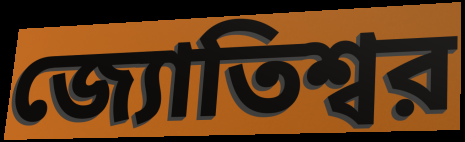
জ্যোতিশ্বর